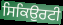
ਸਿਕਿਉਰਟੀ